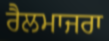
ਰੈਲਮਾਜਰਾ